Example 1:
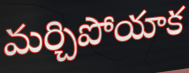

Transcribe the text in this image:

మర్చిపోయాక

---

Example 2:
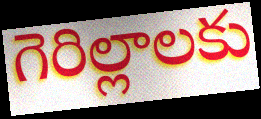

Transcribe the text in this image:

గెరిల్లాలకు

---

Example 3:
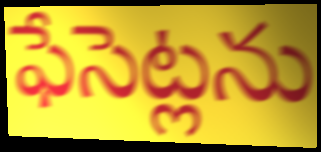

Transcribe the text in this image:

ఫేసెట్లను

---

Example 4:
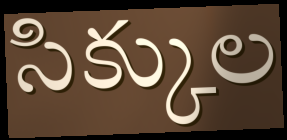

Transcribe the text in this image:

సిక్కుల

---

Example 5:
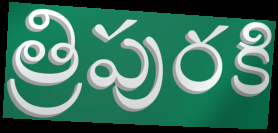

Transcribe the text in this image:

త్రిపురకి